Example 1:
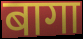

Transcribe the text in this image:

बागा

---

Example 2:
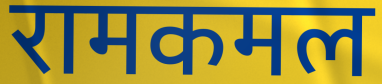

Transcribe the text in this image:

रामकमल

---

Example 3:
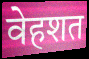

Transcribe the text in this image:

वेहशत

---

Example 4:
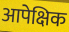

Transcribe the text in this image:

आपेक्षिक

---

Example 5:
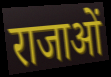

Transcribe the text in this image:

राजाओं